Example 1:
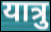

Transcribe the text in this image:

यात्रु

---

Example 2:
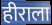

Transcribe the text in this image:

हीराला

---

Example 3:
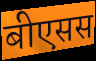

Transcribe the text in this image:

बीएसस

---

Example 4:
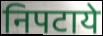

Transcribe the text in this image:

निपटाये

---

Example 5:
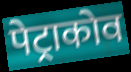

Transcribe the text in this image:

पेट्राकोव